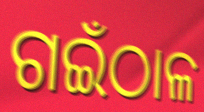
ଗଇଁଠାଳ